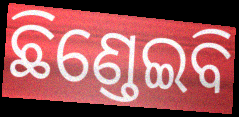
ଛିଣ୍ଡେଇବି